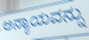
ಅನ್ಯಾಯವನ್ನು